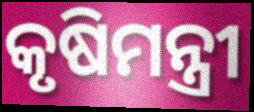
କୃଷିମନ୍ତ୍ରୀ